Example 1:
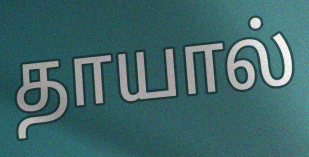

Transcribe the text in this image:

தாயால்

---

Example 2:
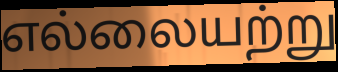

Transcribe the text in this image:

எல்லையற்று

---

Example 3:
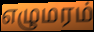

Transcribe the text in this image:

எழுமரம்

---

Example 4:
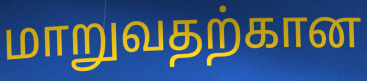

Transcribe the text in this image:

மாறுவதற்கான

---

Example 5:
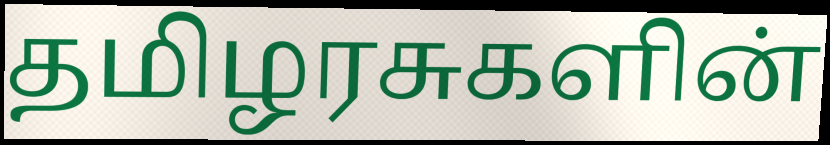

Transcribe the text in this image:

தமிழரசுகளின்